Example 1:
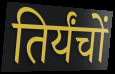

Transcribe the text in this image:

तिर्यंचों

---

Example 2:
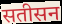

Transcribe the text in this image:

सतीसन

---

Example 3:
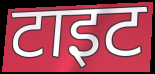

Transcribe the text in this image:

टाइट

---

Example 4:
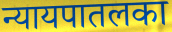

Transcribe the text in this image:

न्यायपातलका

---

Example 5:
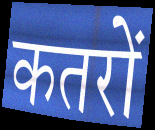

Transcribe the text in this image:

कतरों